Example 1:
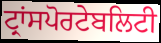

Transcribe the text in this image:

ਟ੍ਰਾਂਸਪੋਰਟੇਬਲਿਟੀ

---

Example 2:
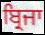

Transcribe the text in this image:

ਬ੍ਰਿਜਾ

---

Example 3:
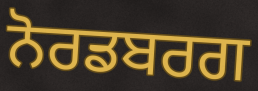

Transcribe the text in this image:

ਨੋਰਡਬਰਗ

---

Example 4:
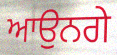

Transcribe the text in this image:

ਆਉਨਗੇ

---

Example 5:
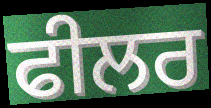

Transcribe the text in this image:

ਫੀਲਰ